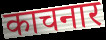
काचनार